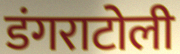
डंगराटोली